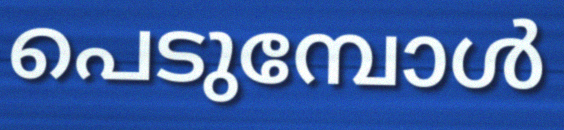
പെടുമ്പോൾ